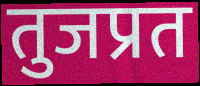
तुजप्रत